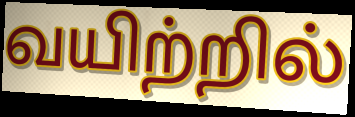
வயிற்றில்